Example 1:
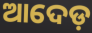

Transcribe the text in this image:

ଆଦେଡ଼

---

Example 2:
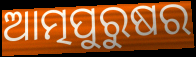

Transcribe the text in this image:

ଆତ୍ମପୁରୁଷର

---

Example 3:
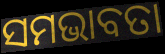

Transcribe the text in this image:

ସମଭାବତା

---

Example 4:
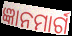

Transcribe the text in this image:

ଜ୍ଞାନମାର୍ଗ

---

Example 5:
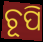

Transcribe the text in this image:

ଚୂପି